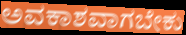
ಅವಕಾಶವಾಗಬೇಕು